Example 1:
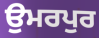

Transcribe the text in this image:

ਉਮਰਪੁਰ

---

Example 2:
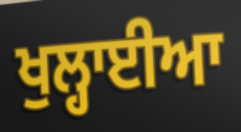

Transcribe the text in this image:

ਖੁਲ੍ਹਾਈਆ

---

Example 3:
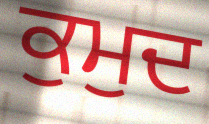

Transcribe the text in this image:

ਕੁਮੁਦ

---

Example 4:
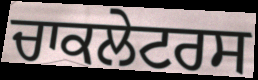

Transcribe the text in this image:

ਚਾਕਲੇਟਰਸ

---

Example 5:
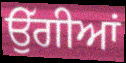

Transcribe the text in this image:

ਉੱਗੀਆਂ